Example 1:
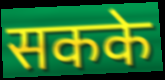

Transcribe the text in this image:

सकके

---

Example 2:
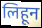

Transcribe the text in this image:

लिहून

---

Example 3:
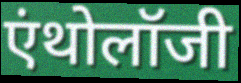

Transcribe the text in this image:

एंथोलॉजी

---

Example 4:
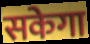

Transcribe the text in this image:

सकेगा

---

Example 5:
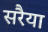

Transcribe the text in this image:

सरैया